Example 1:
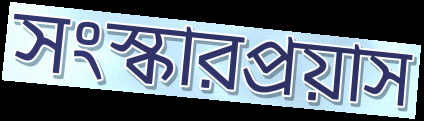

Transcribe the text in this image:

সংস্কারপ্রয়াস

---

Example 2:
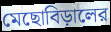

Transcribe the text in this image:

মেছোবিড়ালের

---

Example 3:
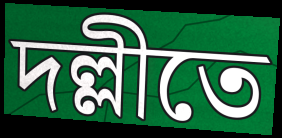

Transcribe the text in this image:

দল্লীতে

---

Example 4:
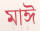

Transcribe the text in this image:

মাঈ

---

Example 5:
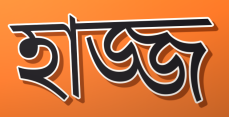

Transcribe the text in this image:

হাজ্জ